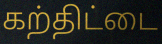
கற்திட்டை